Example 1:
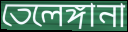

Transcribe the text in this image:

তেলেঙ্গানা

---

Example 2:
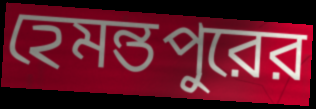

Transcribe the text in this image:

হেমন্তপুরের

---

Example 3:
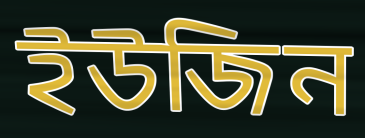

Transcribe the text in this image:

ইউজিন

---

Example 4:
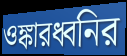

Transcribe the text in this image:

ওঙ্কারধ্বনির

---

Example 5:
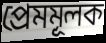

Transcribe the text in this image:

প্রেমমূলক